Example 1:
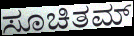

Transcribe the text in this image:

ಸೂಚಿತಮ್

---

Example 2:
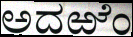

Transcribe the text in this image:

ಅದಱೆಂ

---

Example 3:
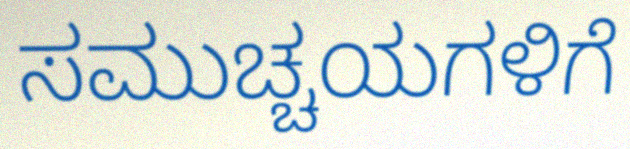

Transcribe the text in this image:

ಸಮುಚ್ಚಯಗಳಿಗೆ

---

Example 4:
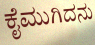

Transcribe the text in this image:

ಕೈಮುಗಿದನು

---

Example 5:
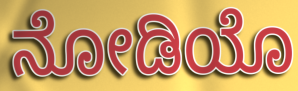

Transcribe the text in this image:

ನೋಡಿಯೊ